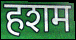
हशम